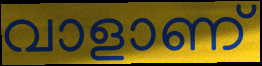
വാളാണ്